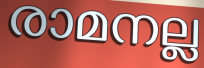
രാമനല്ല